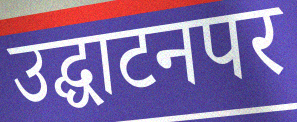
उद्घाटनपर